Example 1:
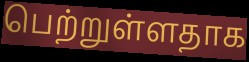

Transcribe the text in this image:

பெற்றுள்ளதாக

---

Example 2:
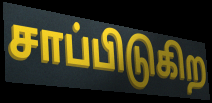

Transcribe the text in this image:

சாப்பிடுகிற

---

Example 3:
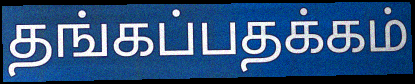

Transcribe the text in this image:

தங்கப்பதக்கம்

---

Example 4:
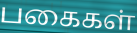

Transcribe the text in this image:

பகைகள்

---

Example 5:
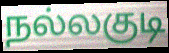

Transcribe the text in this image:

நல்லகுடி